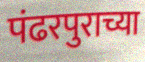
पंढरपुराच्या